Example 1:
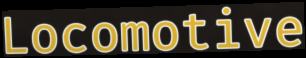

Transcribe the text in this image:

Locomotive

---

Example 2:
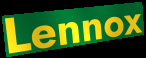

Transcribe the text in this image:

Lennox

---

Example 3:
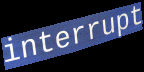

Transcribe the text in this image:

interrupt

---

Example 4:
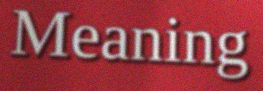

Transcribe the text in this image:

Meaning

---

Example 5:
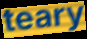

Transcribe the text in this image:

teary